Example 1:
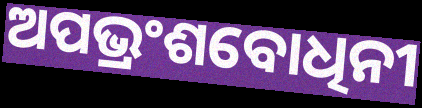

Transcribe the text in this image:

ଅପଭ୍ରଂଶବୋଧିନୀ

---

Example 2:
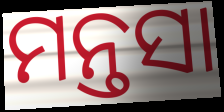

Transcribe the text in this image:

ମନ୍ତସା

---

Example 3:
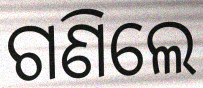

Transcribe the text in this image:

ଗଣିଲେ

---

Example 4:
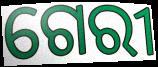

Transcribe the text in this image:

ଗେରୀ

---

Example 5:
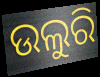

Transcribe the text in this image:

ଉଲୁରି